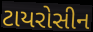
ટાયરોસીન